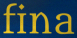
fina